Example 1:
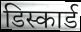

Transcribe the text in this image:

डिस्कार्ड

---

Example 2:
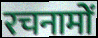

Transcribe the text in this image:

रचनामों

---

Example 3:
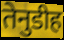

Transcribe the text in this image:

तेनुडीह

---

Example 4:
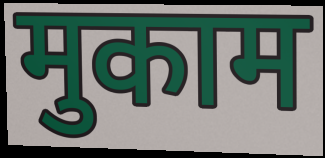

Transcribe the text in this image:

मुकाम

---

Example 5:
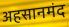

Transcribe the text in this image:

अहसानमंद